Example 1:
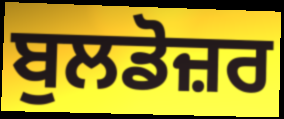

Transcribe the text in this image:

ਬੁਲਡੋਜ਼ਰ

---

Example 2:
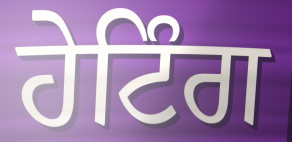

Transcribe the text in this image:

ਹੇਟਿੰਗ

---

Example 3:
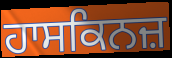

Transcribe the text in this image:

ਹਾਸਕਿਨਜ਼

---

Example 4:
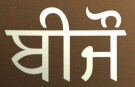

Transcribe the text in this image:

ਬੀਜੌ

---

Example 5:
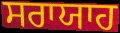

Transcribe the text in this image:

ਸਰਾਯਾਹ